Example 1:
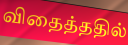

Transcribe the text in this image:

விதைத்ததில்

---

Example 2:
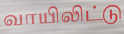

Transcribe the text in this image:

வாயிலிட்டு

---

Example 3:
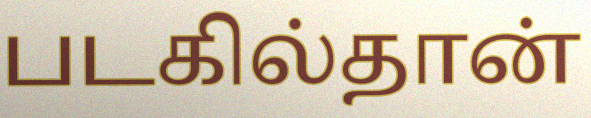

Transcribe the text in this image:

படகில்தான்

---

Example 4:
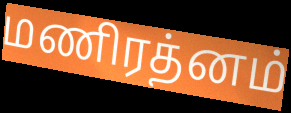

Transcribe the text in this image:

மணிரத்னம்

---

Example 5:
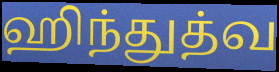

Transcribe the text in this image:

ஹிந்துத்வ